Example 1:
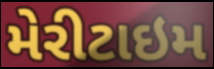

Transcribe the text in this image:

મેરીટાઇમ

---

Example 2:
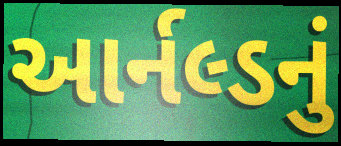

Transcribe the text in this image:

આર્નલ્ડનું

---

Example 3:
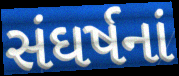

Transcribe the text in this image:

સંઘર્ષનાં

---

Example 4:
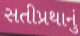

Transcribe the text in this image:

સતીપ્રથાનું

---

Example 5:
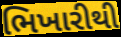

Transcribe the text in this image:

ભિખારીથી